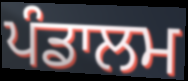
ਪੰਡਾਲਮ